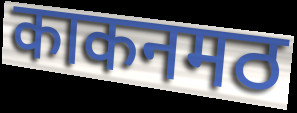
काकनमठ